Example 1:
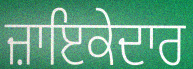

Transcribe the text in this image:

ਜ਼ਾਇਕੇਦਾਰ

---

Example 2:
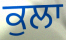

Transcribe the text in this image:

ਕੁਲਾ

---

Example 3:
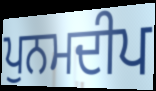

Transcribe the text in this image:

ਪੁਨਮਦੀਪ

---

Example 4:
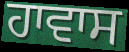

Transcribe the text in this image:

ਹਾਵਾਸ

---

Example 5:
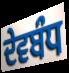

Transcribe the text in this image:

ਦੇਵਬੰਧ